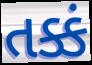
તક્કં